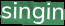
singin